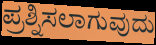
ಪ್ರಶ್ನಿಸಲಾಗುವುದು